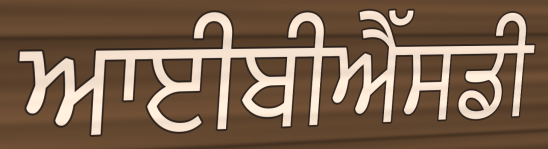
ਆਈਬੀਐੱਸਡੀ